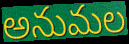
అనుమల